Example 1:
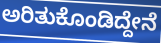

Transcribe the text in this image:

ಅರಿತುಕೊಂಡಿದ್ದೇನೆ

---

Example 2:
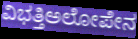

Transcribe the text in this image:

ವಿಭತ್ತಿಅಲೋಪೇನ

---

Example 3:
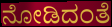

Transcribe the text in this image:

ನೋಡಿದಂತೆ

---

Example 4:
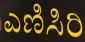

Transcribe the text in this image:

ಎಣಿಸಿರಿ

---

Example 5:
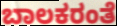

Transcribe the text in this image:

ಬಾಲಕರಂತೆ